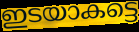
ഇടയാകട്ടെ